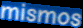
mismos